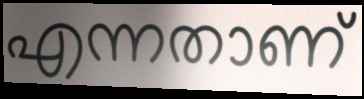
എന്നതാണ്